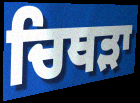
ਚਿਥੜਾ